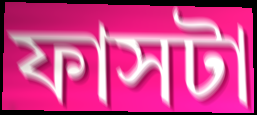
ফাসটা